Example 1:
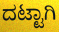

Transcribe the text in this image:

ದಟ್ಟಾಗಿ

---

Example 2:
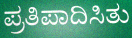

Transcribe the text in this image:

ಪ್ರತಿಪಾದಿಸಿತು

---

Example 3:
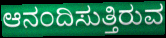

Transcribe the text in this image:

ಆನಂದಿಸುತ್ತಿರುವ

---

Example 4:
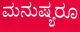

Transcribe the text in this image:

ಮನುಷ್ಯರೂ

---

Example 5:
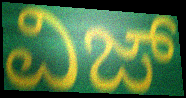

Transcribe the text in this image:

ವಿಜ್